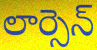
లార్సెన్